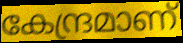
കേന്ദ്രമാണ്